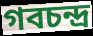
গবচন্দ্র